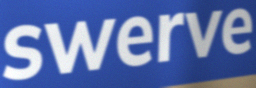
swerve